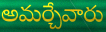
అమర్చేవారు